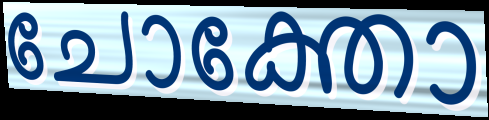
ചോക്തോ